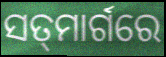
ସତ୍‌ମାର୍ଗରେ